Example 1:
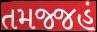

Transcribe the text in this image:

તમજ્જહં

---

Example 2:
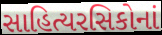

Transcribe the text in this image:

સાહિત્યરસિકોનાં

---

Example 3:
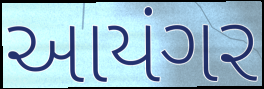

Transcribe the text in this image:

આયંગર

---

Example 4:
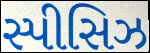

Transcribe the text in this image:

સ્પીસિઝ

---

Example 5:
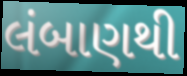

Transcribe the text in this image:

લંબાણથી